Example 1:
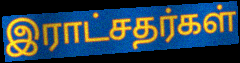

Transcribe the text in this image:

இராட்சதர்கள்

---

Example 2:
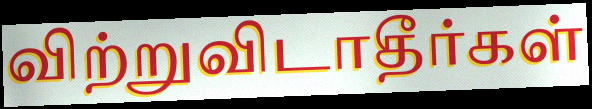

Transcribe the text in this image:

விற்றுவிடாதீர்கள்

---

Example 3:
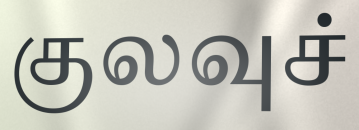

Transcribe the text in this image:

குலவுச்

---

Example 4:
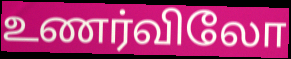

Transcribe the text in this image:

உணர்விலோ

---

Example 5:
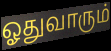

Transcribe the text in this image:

ஓதுவாரும்